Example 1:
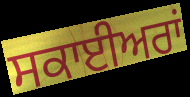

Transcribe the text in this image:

ਸਕਾਈਅਰਾਂ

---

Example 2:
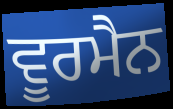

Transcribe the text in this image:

ਵੂਰਮੈਨ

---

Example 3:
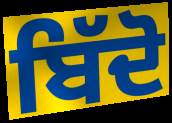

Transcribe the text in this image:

ਬਿੱਦੋ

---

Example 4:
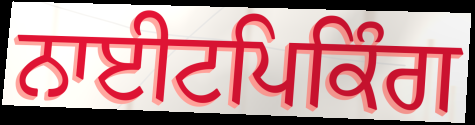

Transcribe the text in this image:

ਨਾਈਟਪਿਕਿੰਗ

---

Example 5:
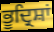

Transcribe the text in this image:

ਭੂਦ੍ਰਿਸ਼ਾਂ